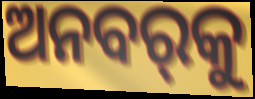
ଅନବର୍‌କୁ